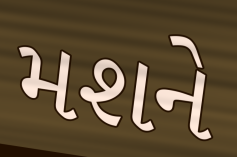
મશને